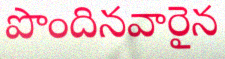
పొందినవారైన